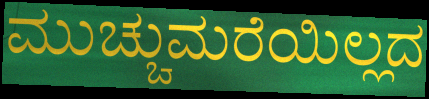
ಮುಚ್ಚುಮರೆಯಿಲ್ಲದ